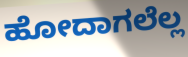
ಹೋದಾಗಲೆಲ್ಲ